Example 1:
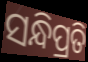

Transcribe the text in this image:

ସନ୍ଧିପ୍ରତି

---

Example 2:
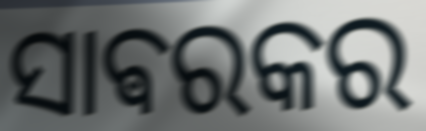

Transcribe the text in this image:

ସାଵରକର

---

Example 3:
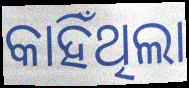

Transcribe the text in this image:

କାହିଁଥିଲା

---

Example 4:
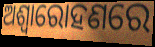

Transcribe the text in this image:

ଅଶ୍ୱାରୋହଣରେ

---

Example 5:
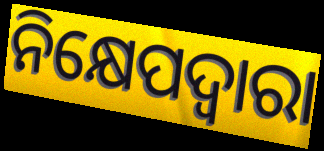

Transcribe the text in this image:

ନିକ୍ଷେପଦ୍ୱାରା